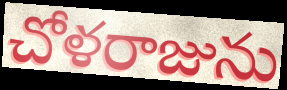
చోళరాజును